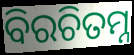
ବିରଚିତମ୍ନ